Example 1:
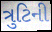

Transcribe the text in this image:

ત્રુટિની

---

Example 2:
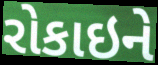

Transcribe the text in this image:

રોકાઇને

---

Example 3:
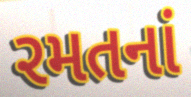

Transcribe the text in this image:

રમતનાં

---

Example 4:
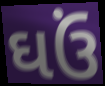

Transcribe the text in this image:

ઘઉં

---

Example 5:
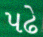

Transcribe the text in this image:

પઢે